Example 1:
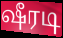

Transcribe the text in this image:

ஷீரடி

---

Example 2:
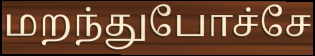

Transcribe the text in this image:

மறந்துபோச்சே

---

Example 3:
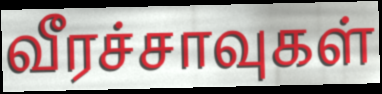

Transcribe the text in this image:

வீரச்சாவுகள்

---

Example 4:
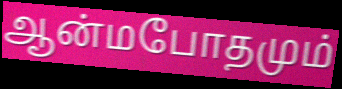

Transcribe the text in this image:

ஆன்மபோதமும்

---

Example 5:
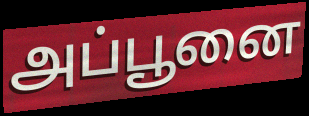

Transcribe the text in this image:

அப்பூனை